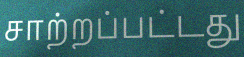
சாற்றப்பட்டது